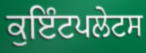
ਕੁਇੰਟਪਲੇਟਸ